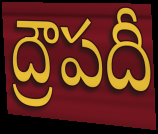
ద్రౌపదీ